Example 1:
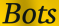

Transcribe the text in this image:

Bots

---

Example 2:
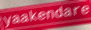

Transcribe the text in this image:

yaakendare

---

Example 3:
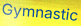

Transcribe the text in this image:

Gymnastic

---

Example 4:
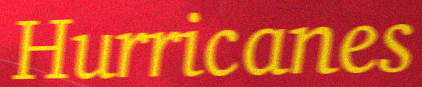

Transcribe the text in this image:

Hurricanes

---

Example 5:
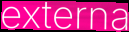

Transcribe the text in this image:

externa